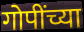
गोपींच्या